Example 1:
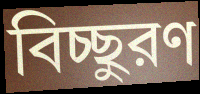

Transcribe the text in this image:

বিচ্ছুরণ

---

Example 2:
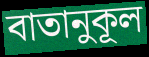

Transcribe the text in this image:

বাতানুকূল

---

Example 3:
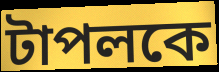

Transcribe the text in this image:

টাপলকে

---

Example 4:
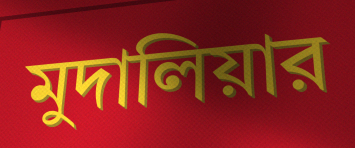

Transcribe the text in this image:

মুদালিয়ার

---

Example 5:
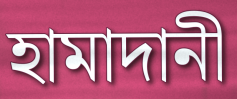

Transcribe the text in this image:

হামাদানী